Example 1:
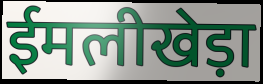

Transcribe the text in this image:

ईमलीखेड़ा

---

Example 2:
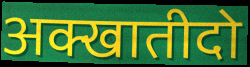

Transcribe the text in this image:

अक्खातीदो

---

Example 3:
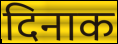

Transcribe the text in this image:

दिनाक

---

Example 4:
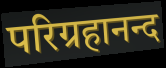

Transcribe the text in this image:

परिग्रहानन्द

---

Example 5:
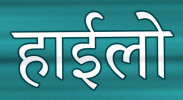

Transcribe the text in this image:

हाईलो